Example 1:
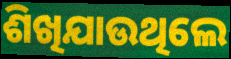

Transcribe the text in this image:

ଶିଖିଯାଉଥିଲେ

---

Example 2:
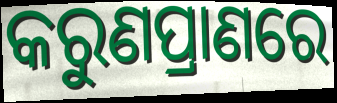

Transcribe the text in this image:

କରୁଣପ୍ରାଣରେ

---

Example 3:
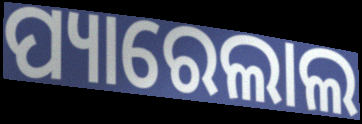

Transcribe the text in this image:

ପ୍ୟାରେଲାଲ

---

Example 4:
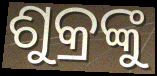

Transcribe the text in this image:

ଶୁକ୍ରଙ୍କୁ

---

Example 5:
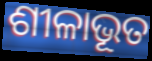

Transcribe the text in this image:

ଶୀଳାଭୂତ